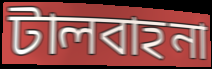
টালবাহনা